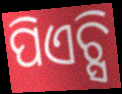
ପିଏଚ୍ସି